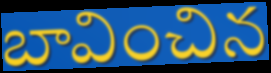
బావించిన